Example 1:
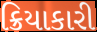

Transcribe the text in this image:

ક્રિયાકારી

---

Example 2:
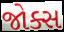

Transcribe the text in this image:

જોક્સ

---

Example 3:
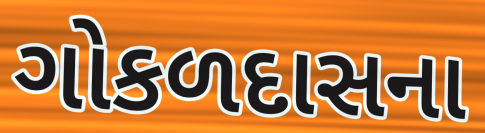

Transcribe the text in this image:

ગોકળદાસના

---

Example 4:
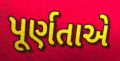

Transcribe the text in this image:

પૂર્ણતાએ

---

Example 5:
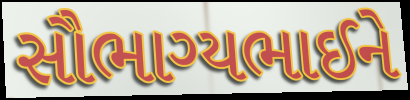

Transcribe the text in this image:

સૌભાગ્યભાઈને